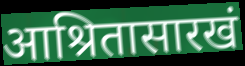
आश्रितासारखं